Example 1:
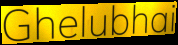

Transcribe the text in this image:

Ghelubhai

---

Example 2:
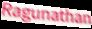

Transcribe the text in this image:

Ragunathan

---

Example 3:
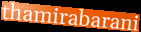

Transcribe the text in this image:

thamirabarani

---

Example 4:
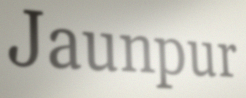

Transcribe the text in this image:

Jaunpur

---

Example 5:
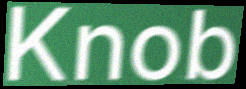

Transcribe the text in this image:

Knob